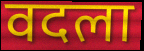
वदला